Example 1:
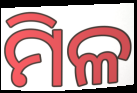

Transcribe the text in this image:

ମିଳ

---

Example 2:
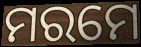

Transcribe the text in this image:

ମରମେ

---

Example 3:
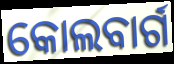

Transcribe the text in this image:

କୋଲବାର୍ଗ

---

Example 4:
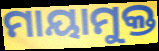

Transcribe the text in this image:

ମାୟାମୁକ୍ତ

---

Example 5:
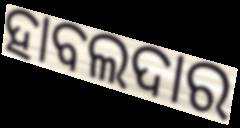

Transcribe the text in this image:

ହାବଲଦାର